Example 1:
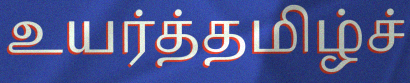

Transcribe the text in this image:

உயர்த்தமிழ்ச்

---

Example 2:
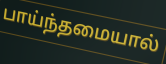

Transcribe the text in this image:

பாய்ந்தமையால்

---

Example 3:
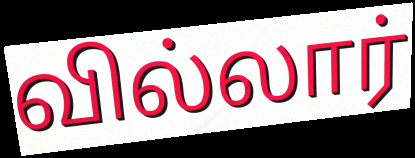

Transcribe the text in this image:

வில்லார்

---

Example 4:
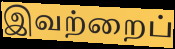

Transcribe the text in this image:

இவற்றைப்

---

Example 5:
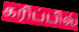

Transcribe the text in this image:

கரிப்பில்